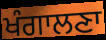
ਖੰਗਾਲਣਾ